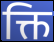
क्ति